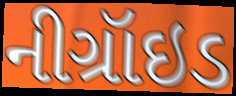
નીગ્રૉઇડ